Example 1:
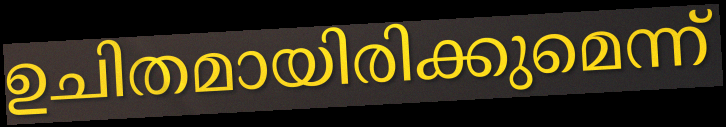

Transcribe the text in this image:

ഉചിതമായിരിക്കുമെന്ന്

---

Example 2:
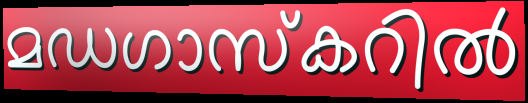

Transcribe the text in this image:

മഡഗാസ്കറിൽ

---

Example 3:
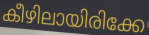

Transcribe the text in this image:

കീഴിലായിരിക്കേ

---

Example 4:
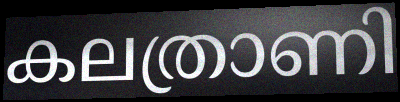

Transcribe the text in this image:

കലത്രാണി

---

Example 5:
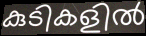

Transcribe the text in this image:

കുടികളിൽ